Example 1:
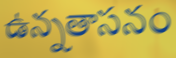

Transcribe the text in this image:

ఉన్నతాసనం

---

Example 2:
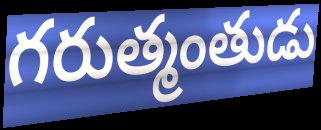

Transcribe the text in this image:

గరుత్మంతుడు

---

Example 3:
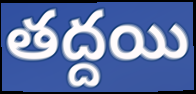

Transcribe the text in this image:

తద్దయి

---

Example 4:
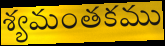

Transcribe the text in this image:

శ్యమంతకము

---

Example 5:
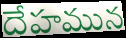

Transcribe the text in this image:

దేహమున